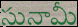
సునామీ